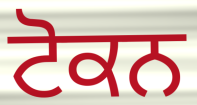
ਟੋਕਨ